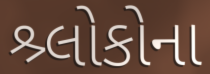
શ્ર્લોકોના